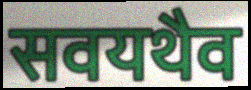
सवयथैव